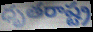
ధృతరాష్ట్ర